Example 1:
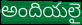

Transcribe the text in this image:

అందియలై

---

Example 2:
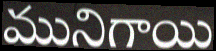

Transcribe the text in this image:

మునిగాయి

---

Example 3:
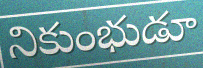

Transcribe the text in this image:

నికుంభుడూ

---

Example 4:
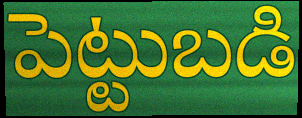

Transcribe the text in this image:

పెట్టుబడి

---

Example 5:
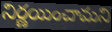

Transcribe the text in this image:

నిర్ణయించామని